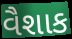
વૈશાક